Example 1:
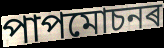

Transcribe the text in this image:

পাপমোচনৰ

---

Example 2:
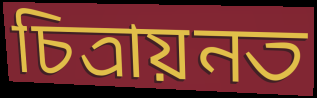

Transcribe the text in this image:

চিত্ৰায়নত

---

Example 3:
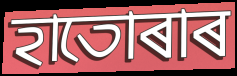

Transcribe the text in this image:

হাতোৰাৰ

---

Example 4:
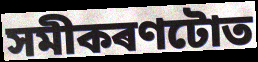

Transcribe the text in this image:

সমীকৰণটোত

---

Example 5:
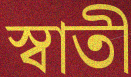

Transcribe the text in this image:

স্বাতী